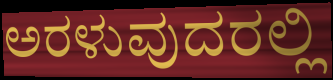
ಅರಳುವುದರಲ್ಲಿ